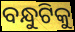
ବନ୍ଧୁଟିକୁ